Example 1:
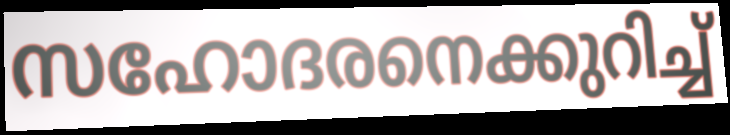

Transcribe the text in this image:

സഹോദരനെക്കുറിച്ച്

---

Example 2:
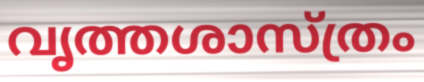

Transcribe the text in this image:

വൃത്തശാസ്ത്രം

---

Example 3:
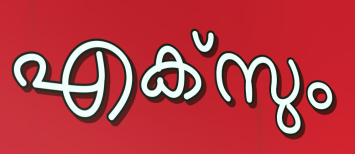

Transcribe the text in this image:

എക്‌സും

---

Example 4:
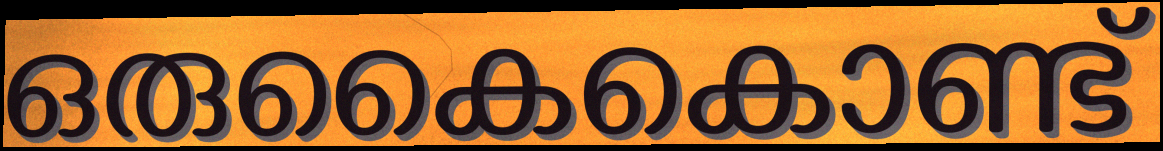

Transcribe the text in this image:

ഒരുകൈകൊണ്ട്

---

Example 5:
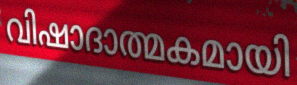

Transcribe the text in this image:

വിഷാദാത്മകമായി